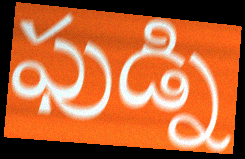
ఫుడ్ని